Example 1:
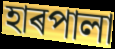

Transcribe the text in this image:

হাৰপালা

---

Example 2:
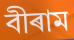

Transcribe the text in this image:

বীৰাম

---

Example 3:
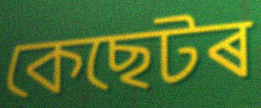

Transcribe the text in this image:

কেছেটৰ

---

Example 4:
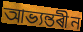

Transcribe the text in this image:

আভ্যন্তৰীন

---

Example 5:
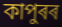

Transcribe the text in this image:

কাপুৰৰ